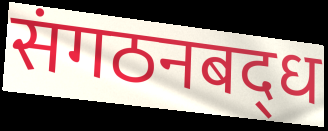
संगठनबद्ध